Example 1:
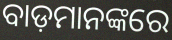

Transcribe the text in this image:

ବାଡ଼ମାନଙ୍କରେ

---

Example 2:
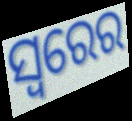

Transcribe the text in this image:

ସ୍ୱରେର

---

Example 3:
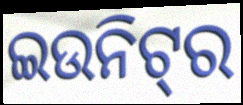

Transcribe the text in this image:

ଇଉନିଟ୍‍ର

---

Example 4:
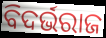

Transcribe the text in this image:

ବିଦର୍ଭରାଜ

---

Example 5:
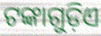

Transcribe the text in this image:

ଟଙ୍କାଗୁଡ଼ିଏ